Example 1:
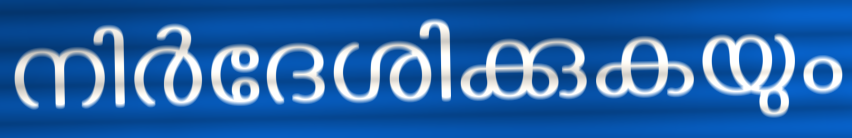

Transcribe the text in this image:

നിർദേശിക്കുകയും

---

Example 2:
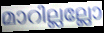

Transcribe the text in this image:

മാറില്ലല്ലോ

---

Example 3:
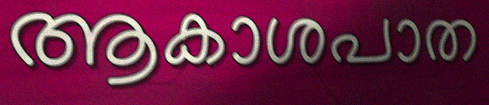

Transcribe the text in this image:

ആകാശപാത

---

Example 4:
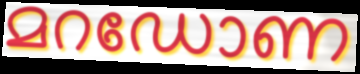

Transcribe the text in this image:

മറഡോണ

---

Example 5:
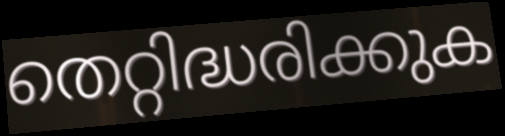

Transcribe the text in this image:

തെറ്റിദ്ധരിക്കുക